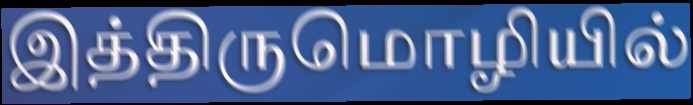
இத்திருமொழியில்